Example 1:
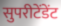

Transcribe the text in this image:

सुपरीटेंडेंट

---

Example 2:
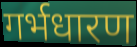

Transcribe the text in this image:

गर्भधारण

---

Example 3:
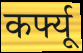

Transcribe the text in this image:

कर्फ्यू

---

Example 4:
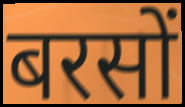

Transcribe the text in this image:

बरसों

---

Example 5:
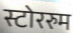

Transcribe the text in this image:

स्टोररुम